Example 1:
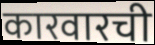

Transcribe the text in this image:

कारवारची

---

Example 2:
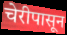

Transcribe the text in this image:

चेरीपासून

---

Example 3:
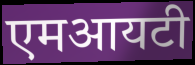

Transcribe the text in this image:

एमआयटी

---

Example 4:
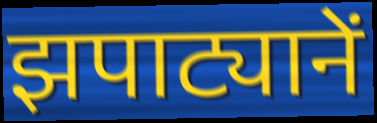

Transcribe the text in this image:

झपाट्यानें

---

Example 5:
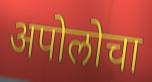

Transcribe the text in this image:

अपोलोचा